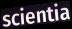
scientia